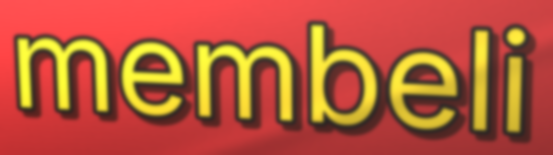
membeli